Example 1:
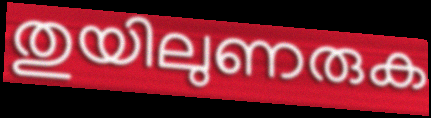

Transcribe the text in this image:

തുയിലുണരുക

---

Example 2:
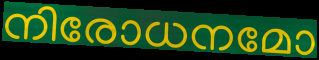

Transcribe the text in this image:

നിരോധനമോ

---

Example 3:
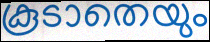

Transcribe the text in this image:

കൂടാതെയും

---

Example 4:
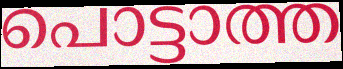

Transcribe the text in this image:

പൊട്ടാത്ത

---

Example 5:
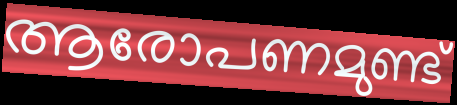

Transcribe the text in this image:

ആരോപണമുണ്ട്